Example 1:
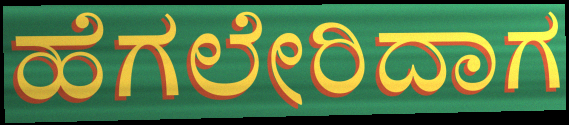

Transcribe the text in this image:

ಹೆಗಲೇರಿದಾಗ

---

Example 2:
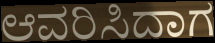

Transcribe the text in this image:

ಆವರಿಸಿದಾಗ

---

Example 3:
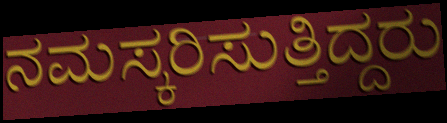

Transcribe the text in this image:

ನಮಸ್ಕರಿಸುತ್ತಿದ್ದರು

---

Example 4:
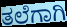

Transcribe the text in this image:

ತಲೆಗಾಗಿ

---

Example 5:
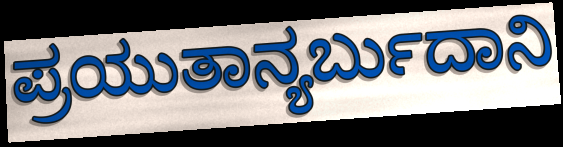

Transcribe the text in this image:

ಪ್ರಯುತಾನ್ಯರ್ಬುದಾನಿ